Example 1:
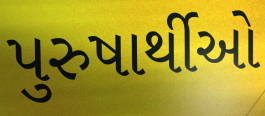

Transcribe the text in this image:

પુરુષાર્થીઓ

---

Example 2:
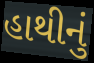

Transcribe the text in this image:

હાથીનું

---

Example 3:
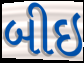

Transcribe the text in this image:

બીઇ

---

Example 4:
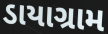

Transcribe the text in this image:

ડાયાગ્રામ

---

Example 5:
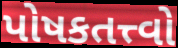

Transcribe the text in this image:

પોષકતત્ત્વો